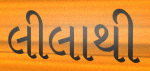
લીલાથી